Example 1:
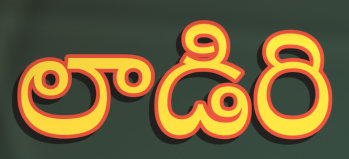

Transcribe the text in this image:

లాడిరి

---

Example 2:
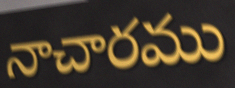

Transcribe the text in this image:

నాచారము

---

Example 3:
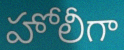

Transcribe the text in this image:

హోలీగా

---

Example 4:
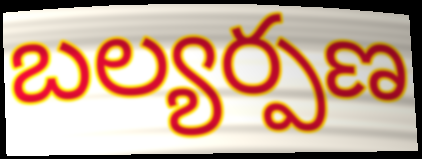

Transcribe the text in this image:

బల్యర్పణ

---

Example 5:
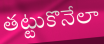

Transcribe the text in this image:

తట్టుకొనేలా